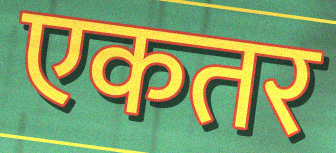
एकतर